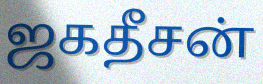
ஜகதீசன்